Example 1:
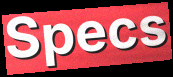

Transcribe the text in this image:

Specs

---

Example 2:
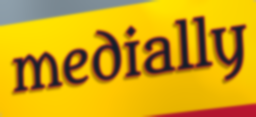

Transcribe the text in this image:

medially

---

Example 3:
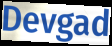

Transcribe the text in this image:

Devgad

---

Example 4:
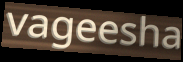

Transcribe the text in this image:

vageesha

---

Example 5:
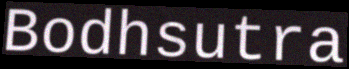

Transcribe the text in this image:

Bodhsutra